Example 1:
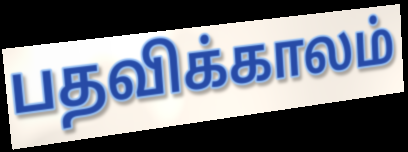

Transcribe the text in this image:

பதவிக்காலம்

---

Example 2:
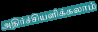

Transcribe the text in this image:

அதிர்ச்சியளிக்கலாம்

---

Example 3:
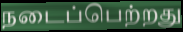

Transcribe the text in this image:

நடைப்பெற்றது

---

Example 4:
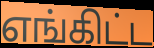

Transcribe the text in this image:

எங்கிட்ட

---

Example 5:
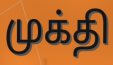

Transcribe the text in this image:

முக்தி